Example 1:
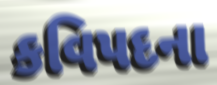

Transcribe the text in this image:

કવિપદના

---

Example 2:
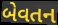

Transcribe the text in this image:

બેવતન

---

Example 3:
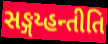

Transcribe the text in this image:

સઙ્ગય્હન્તીતિ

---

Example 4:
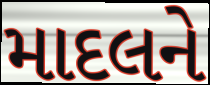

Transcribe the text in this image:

માદલને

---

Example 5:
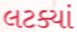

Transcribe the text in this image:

લટક્યાં